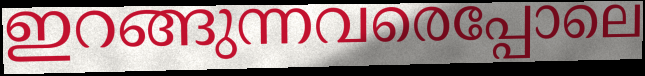
ഇറങ്ങുന്നവരെപ്പോലെ